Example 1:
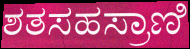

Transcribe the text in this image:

ಶತಸಹಸ್ರಾಣಿ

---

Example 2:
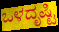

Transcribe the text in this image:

ಒಳದೃಷ್ಟಿ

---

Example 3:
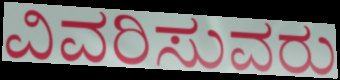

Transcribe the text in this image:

ವಿವರಿಸುವರು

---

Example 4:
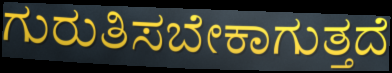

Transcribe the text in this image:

ಗುರುತಿಸಬೇಕಾಗುತ್ತದೆ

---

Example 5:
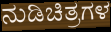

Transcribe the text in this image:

ನುಡಿಚಿತ್ರಗಳ